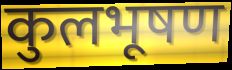
कुलभूषण